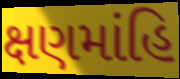
ક્ષણમાંહિ